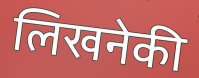
लिखनेकी